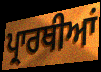
ਪ੍ਰਾਰਥੀਆਂ